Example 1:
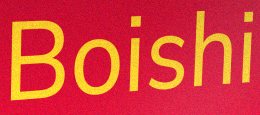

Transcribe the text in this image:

Boishi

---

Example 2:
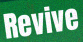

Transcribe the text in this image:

Revive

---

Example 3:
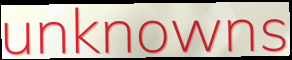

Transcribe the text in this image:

unknowns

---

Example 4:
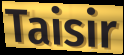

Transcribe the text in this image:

Taisir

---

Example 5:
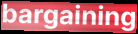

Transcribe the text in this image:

bargaining